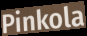
Pinkola